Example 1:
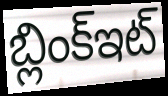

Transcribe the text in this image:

బ్లింక్ఇట్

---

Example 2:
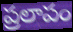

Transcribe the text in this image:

ప్రలాపం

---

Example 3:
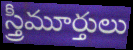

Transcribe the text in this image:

స్త్రీమూర్తులు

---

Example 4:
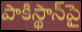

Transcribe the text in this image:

పాకిస్థాన్‌పై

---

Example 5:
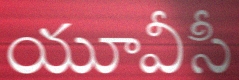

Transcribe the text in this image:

యూవీసీ